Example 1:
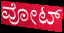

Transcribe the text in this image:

ವೋಟ್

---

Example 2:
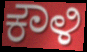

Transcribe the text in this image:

ಕೌಳಿ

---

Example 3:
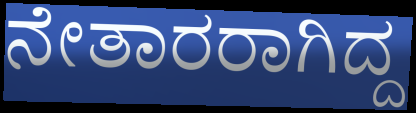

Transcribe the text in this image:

ನೇತಾರರಾಗಿದ್ದ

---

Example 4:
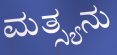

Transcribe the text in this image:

ಮತ್ಸ್ಯನು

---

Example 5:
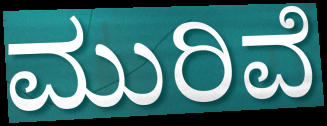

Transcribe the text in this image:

ಮುರಿವೆ